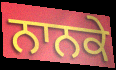
ਨਾਨਕੇ